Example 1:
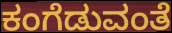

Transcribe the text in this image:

ಕಂಗೆಡುವಂತೆ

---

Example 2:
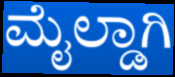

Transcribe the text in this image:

ಮೈಲ್ಡಾಗಿ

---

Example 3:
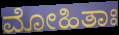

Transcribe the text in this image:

ಮೋಹಿತಾಃ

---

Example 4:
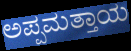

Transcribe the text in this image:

ಅಪ್ಪಮತ್ತಾಯ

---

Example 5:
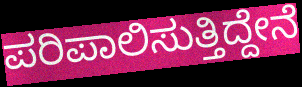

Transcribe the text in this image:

ಪರಿಪಾಲಿಸುತ್ತಿದ್ದೇನೆ